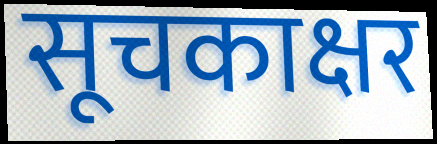
सूचकाक्षर